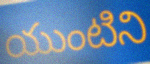
యుంటిని